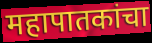
महापातकांचा